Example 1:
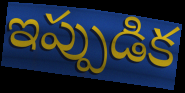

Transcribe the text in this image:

ఇప్పుడిక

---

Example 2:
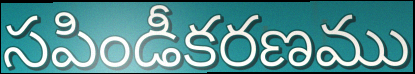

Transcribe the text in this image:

సపిండీకరణము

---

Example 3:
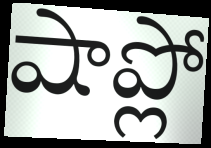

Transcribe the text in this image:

షాప్లో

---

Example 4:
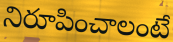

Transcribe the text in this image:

నిరూపించాలంటే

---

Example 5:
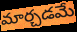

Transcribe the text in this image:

మార్చడమే